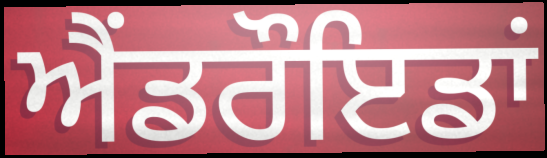
ਐਂਡਰੌਇਡਾਂ